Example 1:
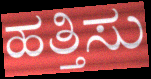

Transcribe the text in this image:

ಹತ್ತಿಸು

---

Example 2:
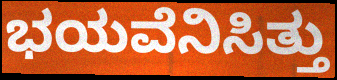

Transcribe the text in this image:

ಭಯವೆನಿಸಿತ್ತು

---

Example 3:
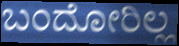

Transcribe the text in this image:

ಬಂದೋರಿಲ್ಲ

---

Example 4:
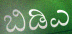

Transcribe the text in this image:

ಬಿಡಿಎ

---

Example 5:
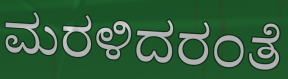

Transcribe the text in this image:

ಮರಳಿದರಂತೆ